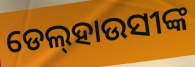
ଡେଲ୍‌ହାଉସୀଙ୍କ